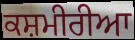
ਕਸ਼ਮੀਰੀਆ